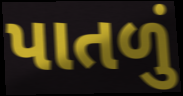
પાતળું